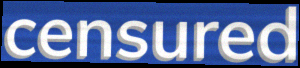
censured